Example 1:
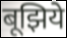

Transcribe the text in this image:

बूझिये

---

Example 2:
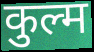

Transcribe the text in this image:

कुल्म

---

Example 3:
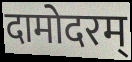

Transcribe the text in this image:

दामोदरम्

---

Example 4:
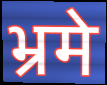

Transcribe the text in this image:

भ्रमे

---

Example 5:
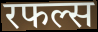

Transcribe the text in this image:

रफल्स